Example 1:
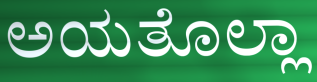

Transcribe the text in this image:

ಅಯತೊಲ್ಲಾ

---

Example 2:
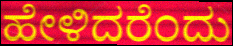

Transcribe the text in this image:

ಹೇಳಿದರೆಂದು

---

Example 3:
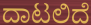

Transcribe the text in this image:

ದಾಟಲಿದೆ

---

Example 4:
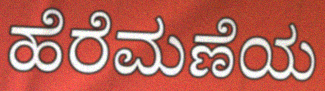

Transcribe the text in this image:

ಹೆರೆಮಣೆಯ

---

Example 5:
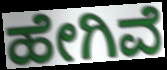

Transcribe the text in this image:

ಹೇಗಿವೆ